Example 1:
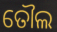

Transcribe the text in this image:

ତୌଲ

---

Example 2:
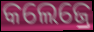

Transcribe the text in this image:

କଲେଜ୍ରେ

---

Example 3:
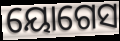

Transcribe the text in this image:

ୟୋଗେସ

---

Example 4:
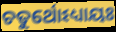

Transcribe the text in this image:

ଚତୁର୍ଥୋଽଧ୍ୟାୟଃ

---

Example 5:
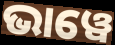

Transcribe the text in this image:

ଭାୱେ